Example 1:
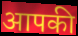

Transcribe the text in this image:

आपकी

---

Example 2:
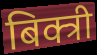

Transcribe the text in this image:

बिक्त्री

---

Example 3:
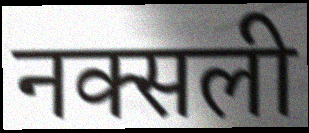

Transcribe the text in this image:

नक्सली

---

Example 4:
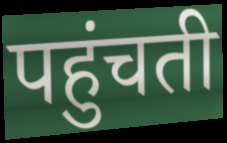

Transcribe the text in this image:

पहुंचती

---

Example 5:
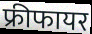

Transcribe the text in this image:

फ्रीफायर